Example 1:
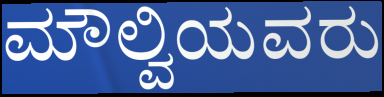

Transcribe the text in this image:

ಮೌಲ್ವಿಯವರು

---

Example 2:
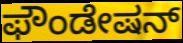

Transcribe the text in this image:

ಫೌಂಡೇಷನ್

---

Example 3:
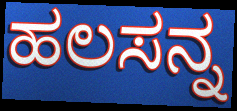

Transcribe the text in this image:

ಹಲಸನ್ನ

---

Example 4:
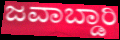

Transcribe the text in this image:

ಜವಾಬ್ಡಾರಿ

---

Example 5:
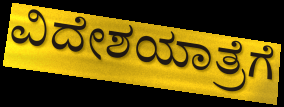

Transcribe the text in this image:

ವಿದೇಶಯಾತ್ರೆಗೆ